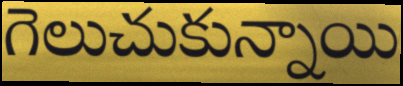
గెలుచుకున్నాయి